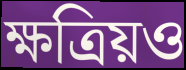
ক্ষত্রিয়ও